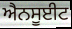
ਐਨਸੂਈਟ